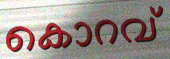
കൊറവ്